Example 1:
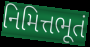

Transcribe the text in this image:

નિમિત્તભૂતં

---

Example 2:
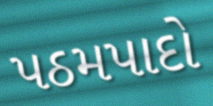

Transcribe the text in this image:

પઠમપાદો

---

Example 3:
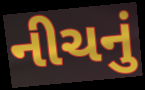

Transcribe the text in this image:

નીચનું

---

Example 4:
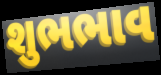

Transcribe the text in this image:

શુભભાવ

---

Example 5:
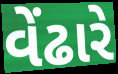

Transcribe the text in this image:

વેંઢારે